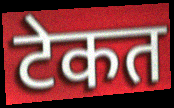
टेकत